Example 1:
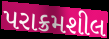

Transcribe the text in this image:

પરાક્રમશીલ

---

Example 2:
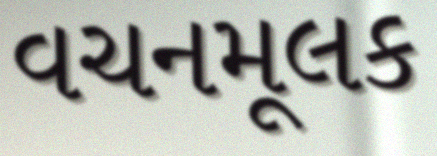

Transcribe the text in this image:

વચનમૂલક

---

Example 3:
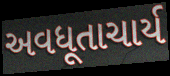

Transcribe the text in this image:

અવધૂતાચાર્ય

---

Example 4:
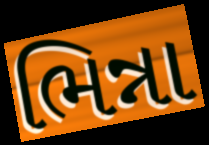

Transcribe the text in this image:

ભિન્ના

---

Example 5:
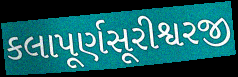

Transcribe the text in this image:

કલાપૂર્ણસૂરીશ્વરજી